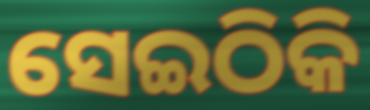
ସେଇଠିକି